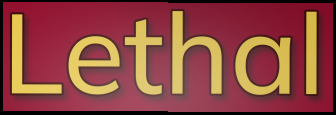
Lethal